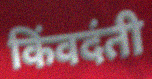
किंवदंती